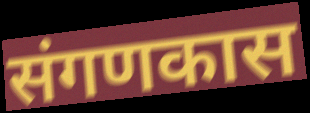
संगणकास